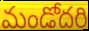
మండోదరి